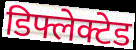
डिफ्लेक्टेड